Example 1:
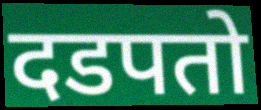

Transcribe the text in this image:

दडपतो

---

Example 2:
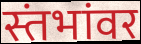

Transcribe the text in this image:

स्तंभांवर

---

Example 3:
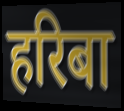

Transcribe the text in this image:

हरिबा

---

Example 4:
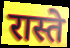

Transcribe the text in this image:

रास्ते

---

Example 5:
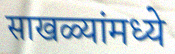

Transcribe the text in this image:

साखळ्यांमध्ये